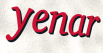
yenar